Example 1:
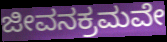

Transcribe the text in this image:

ಜೀವನಕ್ರಮವೇ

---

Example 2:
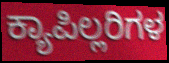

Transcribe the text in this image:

ಕ್ಯಾಪಿಲ್ಲರಿಗಳ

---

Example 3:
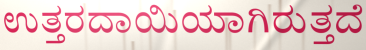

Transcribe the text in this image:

ಉತ್ತರದಾಯಿಯಾಗಿರುತ್ತದೆ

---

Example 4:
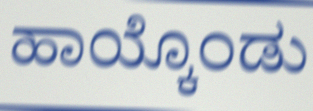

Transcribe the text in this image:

ಹಾಯ್ಕೊಂಡು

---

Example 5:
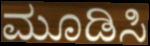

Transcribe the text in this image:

ಮೂಡಿಸಿ